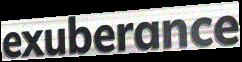
exuberance